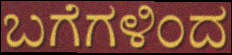
ಬಗೆಗಳಿಂದ